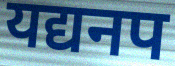
यद्यनप